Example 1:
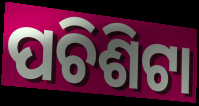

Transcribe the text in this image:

ପଚିଶିଟା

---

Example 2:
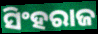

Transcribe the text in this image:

ସିଂହରାଜ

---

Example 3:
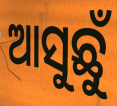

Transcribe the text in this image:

ଆସୁଛୁଁ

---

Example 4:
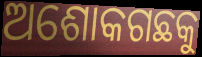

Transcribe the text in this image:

ଅଶୋକଗଛକୁ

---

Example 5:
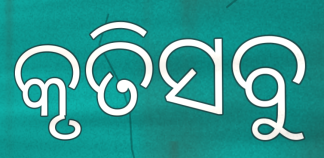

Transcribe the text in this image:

କୃତିସବୁ